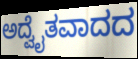
ಅದ್ವೈತವಾದದ